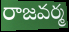
రాజవర్మ